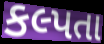
કલ્પતા